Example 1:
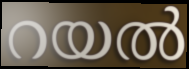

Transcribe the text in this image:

റയൽ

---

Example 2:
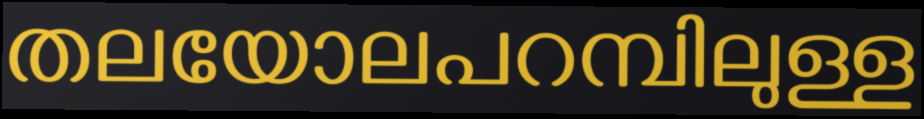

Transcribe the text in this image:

തലയോലപറമ്പിലുള്ള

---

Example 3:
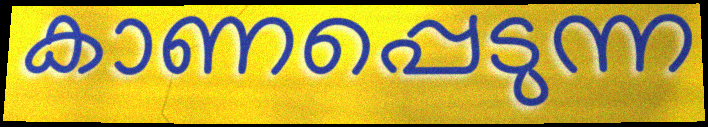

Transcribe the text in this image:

കാണപ്പെടുന്ന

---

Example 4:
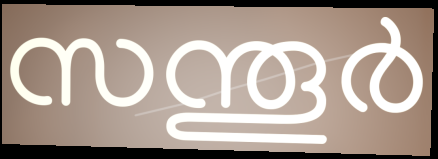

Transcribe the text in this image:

സന്തൂർ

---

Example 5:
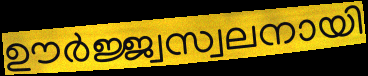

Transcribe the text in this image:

ഊർജ്ജ്വസ്വലനായി